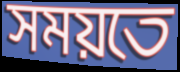
সময়তে